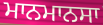
ਮਾਨਮਾਨਸਾ